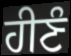
ਹੀਣੰ